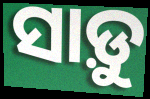
ସାଡ଼ୁ